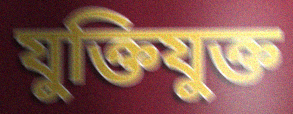
যুক্তিযুক্ত